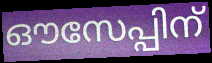
ഔസേപ്പിന്